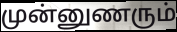
முன்னுணரும்